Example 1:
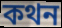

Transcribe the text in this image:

কথন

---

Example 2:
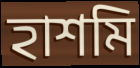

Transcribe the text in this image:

হাশমি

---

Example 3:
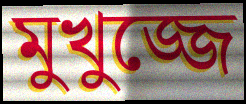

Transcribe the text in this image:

মুখুজ্জে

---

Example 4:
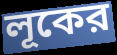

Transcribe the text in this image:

লূকের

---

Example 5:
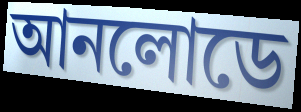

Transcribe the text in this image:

আনলোডে